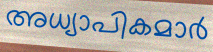
അധ്യാപികമാർ